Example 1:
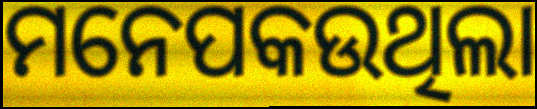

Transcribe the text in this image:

ମନେପକଉଥିଲା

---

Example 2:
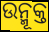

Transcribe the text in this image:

ଉନ୍ମୂକ୍ତ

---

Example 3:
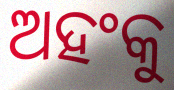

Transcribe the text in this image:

ଅହଂକୁ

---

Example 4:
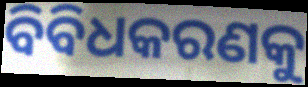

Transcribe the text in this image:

ବିବିଧକରଣକୁ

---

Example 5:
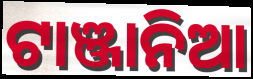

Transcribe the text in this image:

ଟାଞ୍ଜାନିଆ